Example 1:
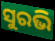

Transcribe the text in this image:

ସୁରଭି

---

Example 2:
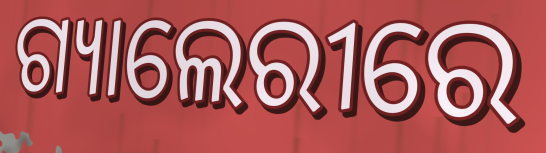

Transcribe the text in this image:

ଗ୍ୟାଲେରୀରେ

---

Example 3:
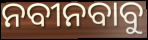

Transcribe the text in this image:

ନବୀନବାବୁ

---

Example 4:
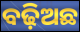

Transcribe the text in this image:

ବଢ଼ିଅଛ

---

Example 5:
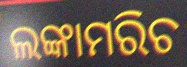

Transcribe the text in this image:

ଲଙ୍କାମରିଚ